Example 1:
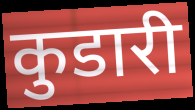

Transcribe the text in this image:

कुडारी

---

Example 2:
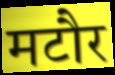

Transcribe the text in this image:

मटौर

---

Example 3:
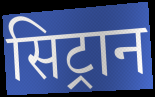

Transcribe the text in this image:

सिट्रान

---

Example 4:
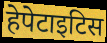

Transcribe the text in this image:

हेपेटाइटिस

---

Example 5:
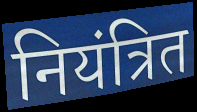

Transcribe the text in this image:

नियंत्रित